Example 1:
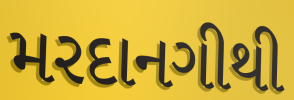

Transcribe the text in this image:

મરદાનગીથી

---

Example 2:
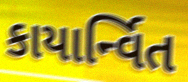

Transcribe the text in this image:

કાયાર્ન્વિત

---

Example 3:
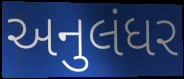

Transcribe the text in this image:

અનુલંધર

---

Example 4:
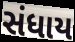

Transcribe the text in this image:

સંધાય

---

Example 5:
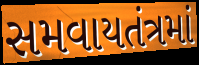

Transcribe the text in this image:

સમવાયતંત્રમાં